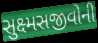
સુક્ષ્મસજીવોની